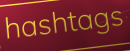
hashtags